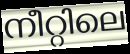
നീറ്റിലെ